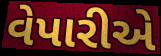
વેપારીએ